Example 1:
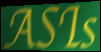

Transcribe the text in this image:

ASIs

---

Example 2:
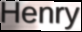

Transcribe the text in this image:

Henry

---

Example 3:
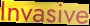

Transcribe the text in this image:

Invasive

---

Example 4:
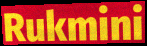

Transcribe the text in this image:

Rukmini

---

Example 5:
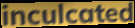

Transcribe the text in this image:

inculcated